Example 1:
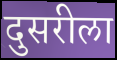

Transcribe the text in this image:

दुसरीला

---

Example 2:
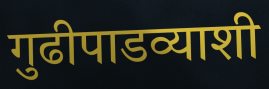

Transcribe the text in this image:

गुढीपाडव्याशी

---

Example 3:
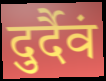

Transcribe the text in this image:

दुर्दैवं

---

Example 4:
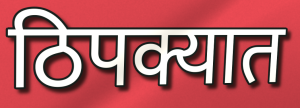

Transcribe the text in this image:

ठिपक्यात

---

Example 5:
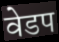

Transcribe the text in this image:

वेडप